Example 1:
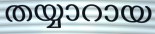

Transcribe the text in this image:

തയ്യാറായ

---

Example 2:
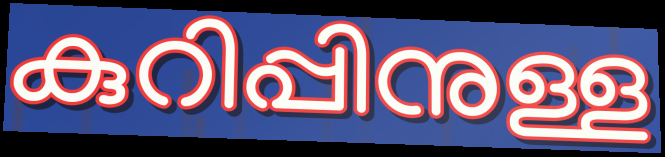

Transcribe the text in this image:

കുറിപ്പിനുള്ള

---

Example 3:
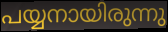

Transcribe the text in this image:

പയ്യനായിരുന്നു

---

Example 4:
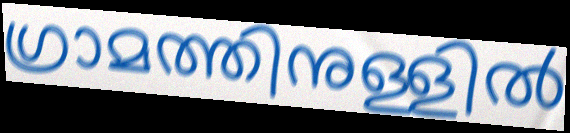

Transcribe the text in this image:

ഗ്രാമത്തിനുള്ളിൽ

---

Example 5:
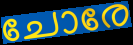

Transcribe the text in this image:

ചോരേ